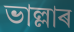
ভাল্লাৰ